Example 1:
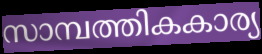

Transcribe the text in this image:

സാമ്പത്തികകാര്യ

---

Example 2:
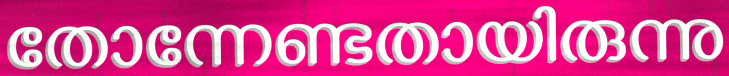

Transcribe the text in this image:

തോന്നേണ്ടതായിരുന്നു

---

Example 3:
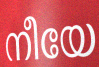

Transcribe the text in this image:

നീയേ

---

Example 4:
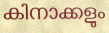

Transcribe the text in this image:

കിനാക്കളും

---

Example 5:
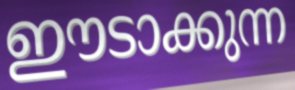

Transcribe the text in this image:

ഈടാക്കുന്ന